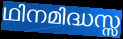
ഥിനമിദ്ധസ്സ